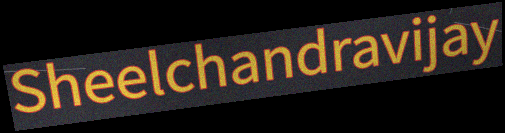
Sheelchandravijay